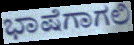
ಭಾಷೆಗಾಗಲಿ